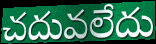
చదువలేదు